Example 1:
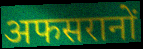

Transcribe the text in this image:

अफसरानों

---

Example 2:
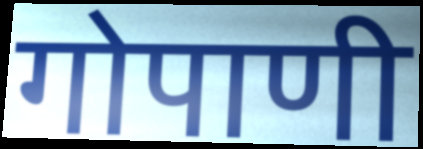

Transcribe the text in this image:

गोपाणी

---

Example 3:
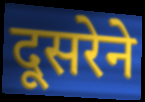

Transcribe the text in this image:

दूसरेने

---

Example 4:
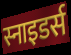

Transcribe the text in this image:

स्नाइडर्स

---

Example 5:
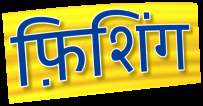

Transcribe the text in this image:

फ़िशिंग